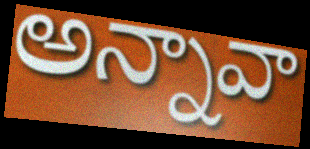
అన్నావా